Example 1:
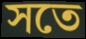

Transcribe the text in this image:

সতে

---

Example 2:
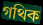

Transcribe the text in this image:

গথিক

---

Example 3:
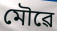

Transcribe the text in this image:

মৌৱে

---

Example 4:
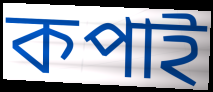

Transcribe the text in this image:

কপাই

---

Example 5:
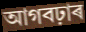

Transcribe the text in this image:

আগবঢ়াৰ